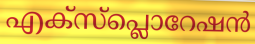
എക്സ്പ്ലൊറേഷൻ